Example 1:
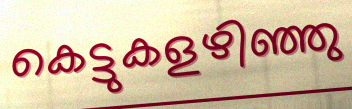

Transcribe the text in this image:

കെട്ടുകളഴിഞ്ഞു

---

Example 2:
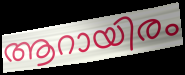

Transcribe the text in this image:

ആറായിരം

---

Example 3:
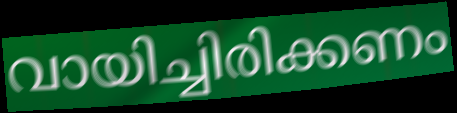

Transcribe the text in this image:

വായിച്ചിരിക്കണം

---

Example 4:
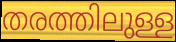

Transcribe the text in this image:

തരത്തിലുള്ള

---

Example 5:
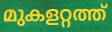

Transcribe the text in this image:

മുകളറ്റത്ത്